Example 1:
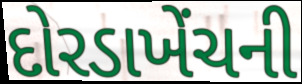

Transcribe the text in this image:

દોરડાખેંચની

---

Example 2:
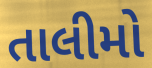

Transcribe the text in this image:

તાલીમો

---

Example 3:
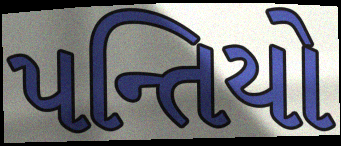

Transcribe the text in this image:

પન્તિયો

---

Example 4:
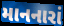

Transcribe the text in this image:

માનનારાં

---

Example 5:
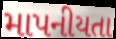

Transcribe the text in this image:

માપનીયતા